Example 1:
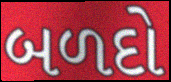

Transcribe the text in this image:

બળદો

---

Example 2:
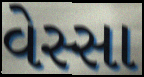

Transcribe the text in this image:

વેસ્સા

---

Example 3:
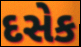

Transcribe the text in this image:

દસેક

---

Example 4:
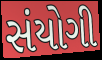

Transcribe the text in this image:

સંયોગી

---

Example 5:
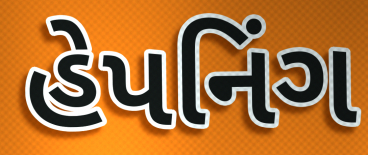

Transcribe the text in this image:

હેપનિંગ